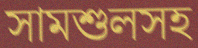
সামশুলসহ